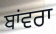
ਬਾਂਵਰਾ